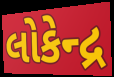
લોકેન્દ્ર